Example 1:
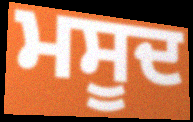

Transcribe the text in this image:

ਮਸੂਦ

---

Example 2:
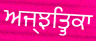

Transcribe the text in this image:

ਅਜ੍ਝਤ੍ਤਿਕਾ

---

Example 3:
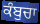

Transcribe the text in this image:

ਕੰਬੁਚਾ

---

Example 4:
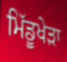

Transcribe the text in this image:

ਮਿੱਡੂਖੇੜਾ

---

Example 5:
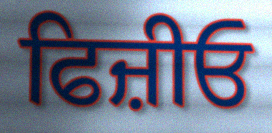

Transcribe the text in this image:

ਫਿਜ਼ੀਓ